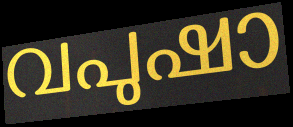
വപുഷാ